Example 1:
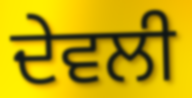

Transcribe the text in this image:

ਦੇਵਲੀ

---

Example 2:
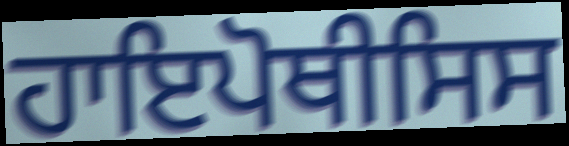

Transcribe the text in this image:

ਹਾਇਪੋਥੀਸਿਸ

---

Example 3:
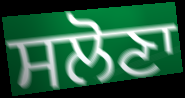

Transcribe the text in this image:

ਸਲੋਣਾ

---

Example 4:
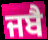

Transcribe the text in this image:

ਜਬੈ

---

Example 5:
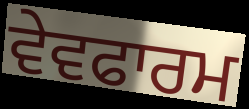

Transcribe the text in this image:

ਵੇਵਫਾਰਮ